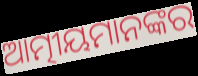
ଆତ୍ମୀୟମାନଙ୍କର